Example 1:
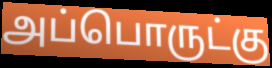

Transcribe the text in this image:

அப்பொருட்கு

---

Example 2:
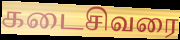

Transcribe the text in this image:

கடைசிவரை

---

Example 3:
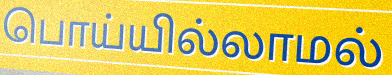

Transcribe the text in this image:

பொய்யில்லாமல்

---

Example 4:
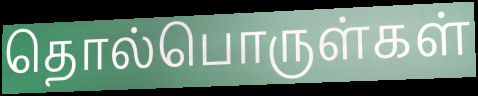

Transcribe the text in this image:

தொல்பொருள்கள்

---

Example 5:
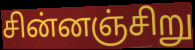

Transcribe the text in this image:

சின்னஞ்சிறு